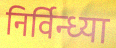
निर्विन्ध्या